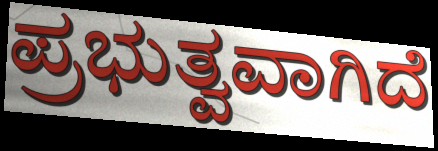
ಪ್ರಭುತ್ವವಾಗಿದೆ